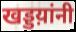
खड्डय़ांनी